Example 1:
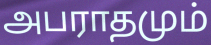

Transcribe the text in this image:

அபராதமும்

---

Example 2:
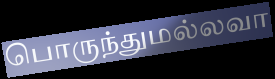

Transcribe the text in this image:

பொருந்துமல்லவா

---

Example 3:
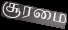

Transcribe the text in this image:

சூரமை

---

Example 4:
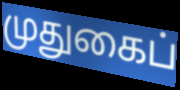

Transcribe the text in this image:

முதுகைப்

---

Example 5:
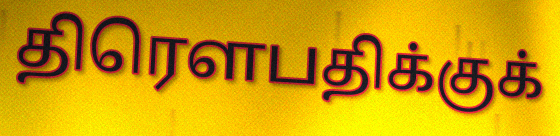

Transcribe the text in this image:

திரௌபதிக்குக்